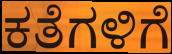
ಕತೆಗಳಿಗೆ